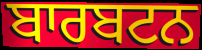
ਬਾਰਬਟਨ